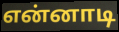
என்னாடி